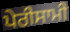
ਪੇਰੀਸਾਮੀ